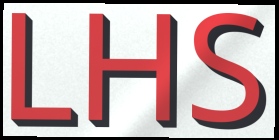
LHS